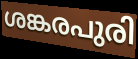
ശങ്കരപുരി